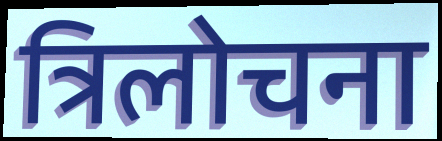
त्रिलोचना